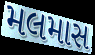
મલમાસ